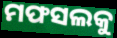
ମଫସଲକୁ